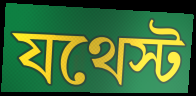
যথেস্ট